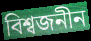
বিশ্বজনীন